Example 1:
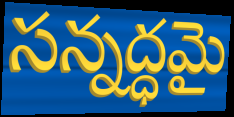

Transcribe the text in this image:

సన్నద్ధమై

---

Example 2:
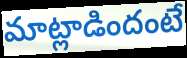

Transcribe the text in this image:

మాట్లాడిందంటే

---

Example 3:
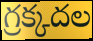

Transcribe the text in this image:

గ్రక్కదల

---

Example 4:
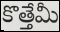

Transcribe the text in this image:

కొత్తేమీ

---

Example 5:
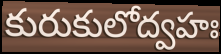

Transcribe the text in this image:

కురుకులోద్వహః